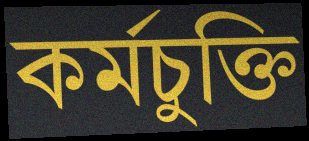
কর্মচুক্তি